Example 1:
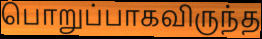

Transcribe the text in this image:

பொறுப்பாகவிருந்த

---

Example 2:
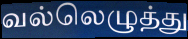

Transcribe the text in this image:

வல்லெழுத்து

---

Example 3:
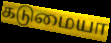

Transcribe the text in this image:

கடுமையா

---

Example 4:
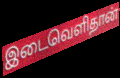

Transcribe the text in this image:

இடைவெளிதான்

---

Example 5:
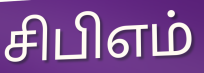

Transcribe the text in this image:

சிபிஎம்